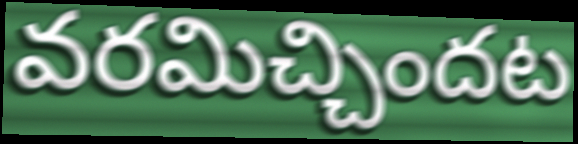
వరమిచ్చిందట